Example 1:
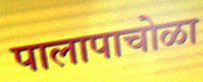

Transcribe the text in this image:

पालापाचोळा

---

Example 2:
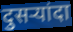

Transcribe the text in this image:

दुसऱ्यांदा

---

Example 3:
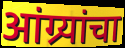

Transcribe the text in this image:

आंग्र्यांचा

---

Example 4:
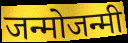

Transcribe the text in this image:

जन्मोजन्मी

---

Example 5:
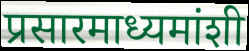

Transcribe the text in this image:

प्रसारमाध्यमांशी